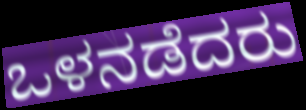
ಒಳನಡೆದರು